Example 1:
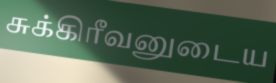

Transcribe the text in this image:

சுக்கிரீவனுடைய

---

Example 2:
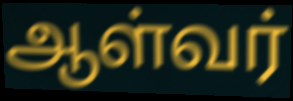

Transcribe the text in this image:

ஆள்வர்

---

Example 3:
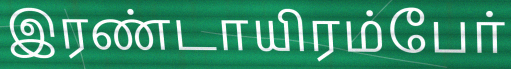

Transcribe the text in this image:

இரண்டாயிரம்பேர்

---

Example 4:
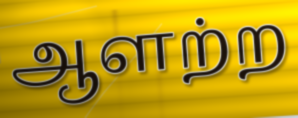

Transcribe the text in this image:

ஆளற்ற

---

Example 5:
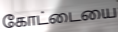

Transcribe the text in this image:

கோட்டையை